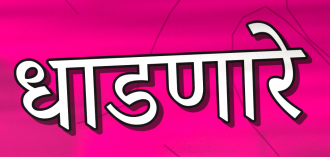
धाडणारे